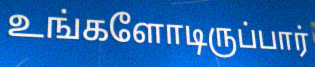
உங்களோடிருப்பார்